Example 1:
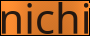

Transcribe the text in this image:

nichi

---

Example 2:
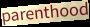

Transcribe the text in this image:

parenthood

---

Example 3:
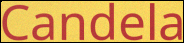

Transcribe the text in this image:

Candela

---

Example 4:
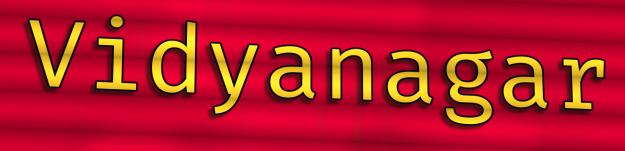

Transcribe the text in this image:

Vidyanagar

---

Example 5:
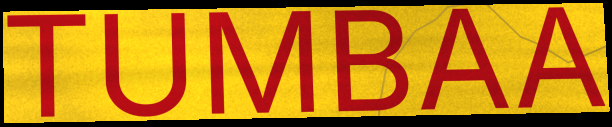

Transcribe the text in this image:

TUMBAA